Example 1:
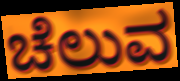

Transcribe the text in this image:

ಚೆಲುವ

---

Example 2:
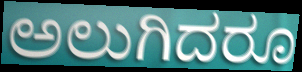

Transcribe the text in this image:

ಅಲುಗಿದರೂ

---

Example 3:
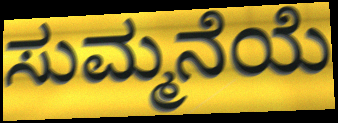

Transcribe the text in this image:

ಸುಮ್ಮನೆಯೆ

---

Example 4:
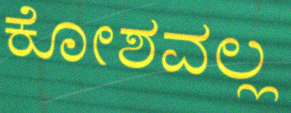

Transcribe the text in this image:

ಕೋಶವಲ್ಲ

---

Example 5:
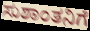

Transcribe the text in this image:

ಸುಶಾಂತನಿಗೆ